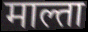
माल्ता